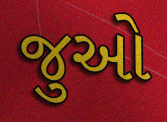
જુઓ